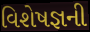
વિશેષજ્ઞની